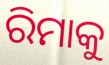
ରିମାକୁ